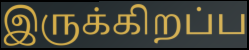
இருக்கிறப்ப